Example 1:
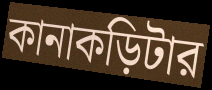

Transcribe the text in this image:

কানাকড়িটার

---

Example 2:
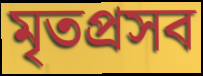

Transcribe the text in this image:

মৃতপ্রসব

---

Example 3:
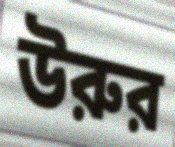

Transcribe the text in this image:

উরুর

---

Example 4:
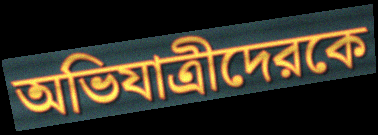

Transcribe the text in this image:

অভিযাত্রীদেরকে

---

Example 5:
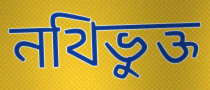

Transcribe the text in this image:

নথিভুক্ত